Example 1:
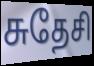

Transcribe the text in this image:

சுதேசி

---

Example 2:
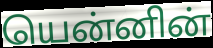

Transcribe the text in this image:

யென்னின்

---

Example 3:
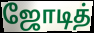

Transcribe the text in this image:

ஜோடித்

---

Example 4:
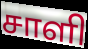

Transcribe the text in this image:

சாளி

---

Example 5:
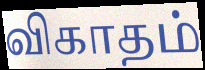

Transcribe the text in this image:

விகாதம்